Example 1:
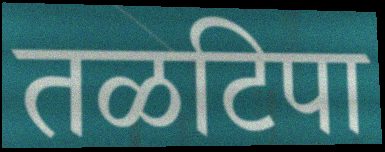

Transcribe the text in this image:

तळटिपा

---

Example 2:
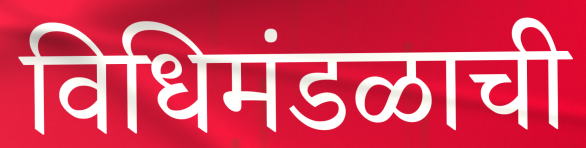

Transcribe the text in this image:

विधिमंडळाची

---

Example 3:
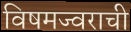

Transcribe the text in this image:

विषमज्वराची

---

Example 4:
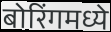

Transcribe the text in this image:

बोरिंगमध्ये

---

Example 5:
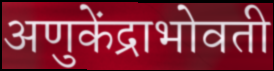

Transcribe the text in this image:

अणुकेंद्राभोवती